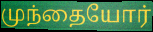
முந்தையோர்